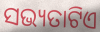
ସଭ୍ୟତାଟିଏ